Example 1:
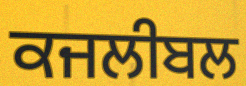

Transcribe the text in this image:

ਕਜਲੀਬਲ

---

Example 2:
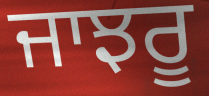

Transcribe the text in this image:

ਜਾਝਰੂ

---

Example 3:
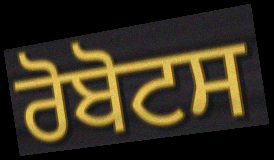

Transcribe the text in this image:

ਰੋਬੋਟਸ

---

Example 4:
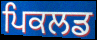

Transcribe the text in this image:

ਪਿਕਲਡ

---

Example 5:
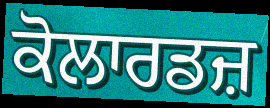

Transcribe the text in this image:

ਕੋਲਾਰਡਜ਼